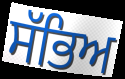
ਸੱਭਿਅ